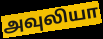
அவுலியா